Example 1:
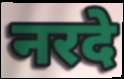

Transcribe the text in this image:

नरदे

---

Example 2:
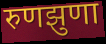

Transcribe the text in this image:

रुणझुणा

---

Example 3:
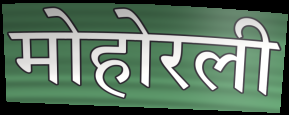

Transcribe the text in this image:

मोहोरली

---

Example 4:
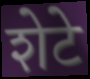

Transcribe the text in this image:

शेटे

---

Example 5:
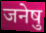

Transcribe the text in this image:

जनेषु